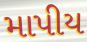
માપીય